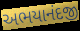
અભયાનંદજી